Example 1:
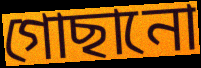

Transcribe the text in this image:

গোছানো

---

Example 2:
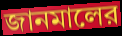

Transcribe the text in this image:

জানমালের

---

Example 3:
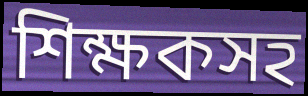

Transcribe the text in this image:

শিক্ষকসহ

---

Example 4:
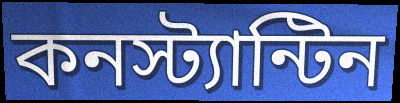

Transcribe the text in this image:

কনস্ট্যান্টিন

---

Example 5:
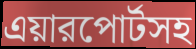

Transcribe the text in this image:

এয়ারপোর্টসহ